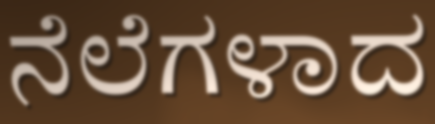
ನೆಲೆಗಳಾದ